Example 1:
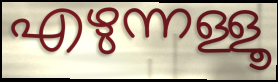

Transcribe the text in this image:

എഴുന്നള്ളൂ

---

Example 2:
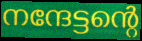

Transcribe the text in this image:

നന്ദേട്ടന്റെ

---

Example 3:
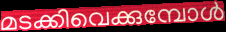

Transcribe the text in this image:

മടക്കിവെക്കുമ്പോൾ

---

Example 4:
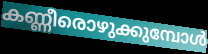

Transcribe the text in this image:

കണ്ണീരൊഴുക്കുമ്പോൾ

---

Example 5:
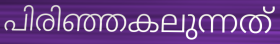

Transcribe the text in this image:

പിരിഞ്ഞകലുന്നത്